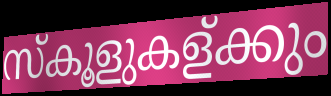
സ്കൂളുകള്ക്കും